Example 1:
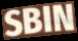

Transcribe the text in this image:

SBIN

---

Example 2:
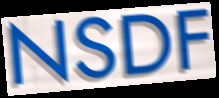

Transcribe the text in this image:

NSDF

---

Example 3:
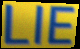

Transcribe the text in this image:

LIE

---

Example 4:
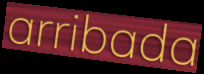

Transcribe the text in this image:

arribada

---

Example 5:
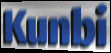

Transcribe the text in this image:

Kunbi